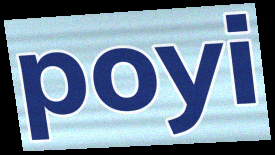
poyi